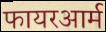
फायरआर्म